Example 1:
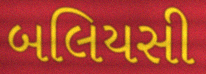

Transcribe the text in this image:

બલિયસી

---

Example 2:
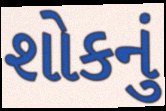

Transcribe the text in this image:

શોકનું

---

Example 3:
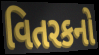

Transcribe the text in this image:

વિતરકનો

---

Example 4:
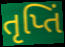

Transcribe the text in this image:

તૃપ્તિં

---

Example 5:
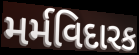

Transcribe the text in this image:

મર્મવિદારક